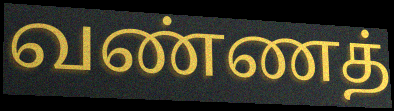
வண்ணத்